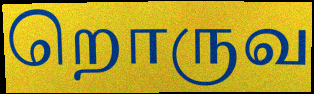
றொருவ